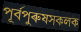
পূৰ্বপুৰুষসকলক